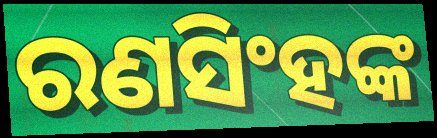
ରଣସିଂହଙ୍କ